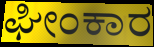
ಘೀಂಕಾರ